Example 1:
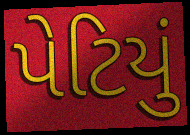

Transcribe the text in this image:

પેટિયું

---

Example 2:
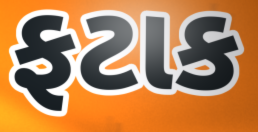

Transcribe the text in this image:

ફટાક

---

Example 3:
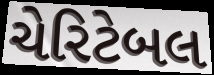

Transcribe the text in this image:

ચેરિટેબલ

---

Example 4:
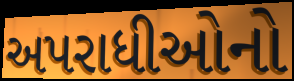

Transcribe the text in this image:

અપરાધીઓનો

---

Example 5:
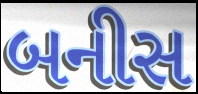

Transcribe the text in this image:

બનીસ